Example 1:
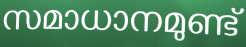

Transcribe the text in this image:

സമാധാനമുണ്ട്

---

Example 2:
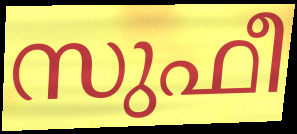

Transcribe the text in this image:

സുഫീ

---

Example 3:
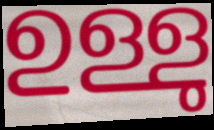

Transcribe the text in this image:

ഉള്ളു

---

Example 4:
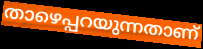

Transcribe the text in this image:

താഴെപ്പറയുന്നതാണ്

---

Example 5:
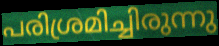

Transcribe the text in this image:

പരിശ്രമിച്ചിരുന്നു